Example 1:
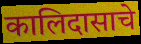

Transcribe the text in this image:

कालिदासाचे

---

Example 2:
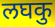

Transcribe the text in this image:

लघकु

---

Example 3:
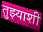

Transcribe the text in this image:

तुझ्याशी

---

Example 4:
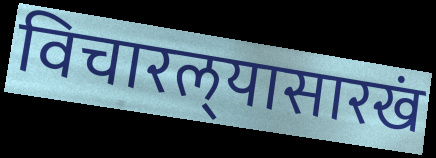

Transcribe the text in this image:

विचारल्यासारखं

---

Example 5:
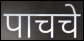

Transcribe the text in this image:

पाचचे